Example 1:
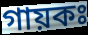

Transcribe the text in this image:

গায়কঃ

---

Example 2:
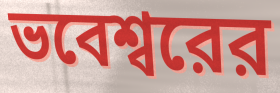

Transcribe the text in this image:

ভবেশ্বরের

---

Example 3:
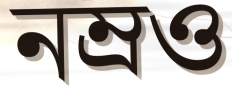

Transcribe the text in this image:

নম্রও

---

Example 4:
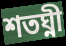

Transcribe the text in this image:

শতঘ্নী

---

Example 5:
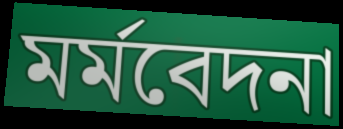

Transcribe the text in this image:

মর্মবেদনা